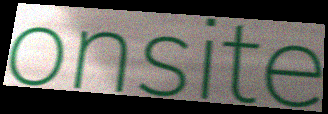
onsite